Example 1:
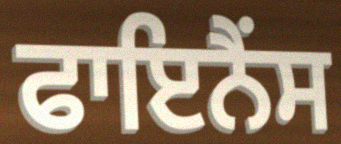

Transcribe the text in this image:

ਫਾਇਨੈਂਸ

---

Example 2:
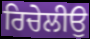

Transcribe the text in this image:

ਰਿਚੇਲੀਉ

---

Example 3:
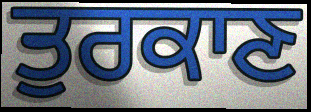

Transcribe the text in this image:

ਤੁਰਕਾਣ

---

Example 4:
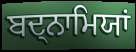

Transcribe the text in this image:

ਬਦ੍ਨਾਮਿਯਾਂ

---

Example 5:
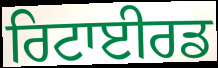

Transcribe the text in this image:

ਰਿਟਾਈਰਡ